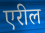
एरील